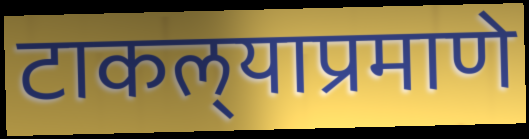
टाकल्याप्रमाणे